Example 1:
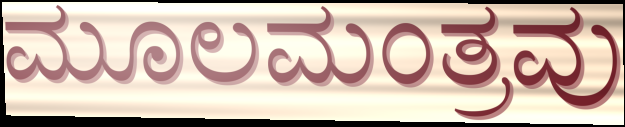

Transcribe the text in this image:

ಮೂಲಮಂತ್ರವು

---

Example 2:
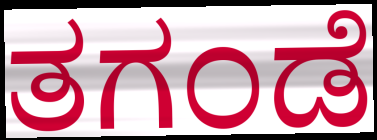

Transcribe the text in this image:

ತಗಂಡೆ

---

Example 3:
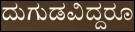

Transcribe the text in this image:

ದುಗುಡವಿದ್ದರೂ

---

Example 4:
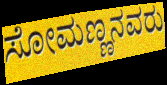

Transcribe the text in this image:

ಸೋಮಣ್ಣನವರು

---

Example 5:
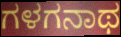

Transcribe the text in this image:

ಗಳಗನಾಥ